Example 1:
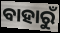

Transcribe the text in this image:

ବାହାରୁଁ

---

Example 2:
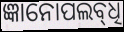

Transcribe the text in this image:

ଜ୍ଞାନୋପଲବ୍‌ଧି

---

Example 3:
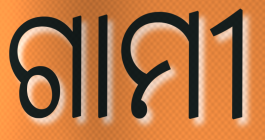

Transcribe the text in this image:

ଗାମୀ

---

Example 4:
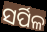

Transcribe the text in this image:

ସର୍ପିଳ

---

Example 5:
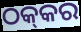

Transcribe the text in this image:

ଠକ୍‍କର